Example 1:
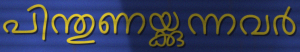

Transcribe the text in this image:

പിന്തുണയ്ക്കുന്നവർ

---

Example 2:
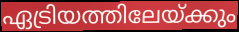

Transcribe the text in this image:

ഏട്രിയത്തിലേയ്ക്കും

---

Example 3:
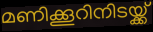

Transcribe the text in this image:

മണിക്കൂറിനിടയ്ക്ക്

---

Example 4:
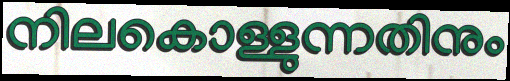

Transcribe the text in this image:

നിലകൊള്ളുന്നതിനും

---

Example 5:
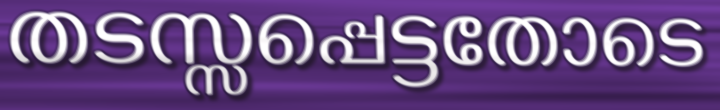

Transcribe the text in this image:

തടസ്സപ്പെട്ടതോടെ